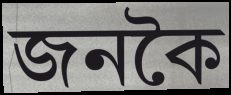
জনকৈ